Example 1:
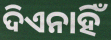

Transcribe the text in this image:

ଦିଏନାହିଁ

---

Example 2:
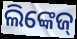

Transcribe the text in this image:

ଲିଙ୍କେଜ୍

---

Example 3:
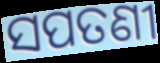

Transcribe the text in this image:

ସପତଣୀ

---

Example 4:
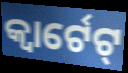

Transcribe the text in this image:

କ୍ୱାର୍ଟେଟ୍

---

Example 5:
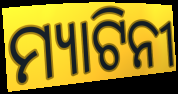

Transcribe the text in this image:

ମ୍ୟାଟିନୀ